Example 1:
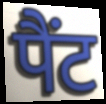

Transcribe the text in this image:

पैंट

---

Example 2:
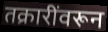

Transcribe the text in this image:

तक्रारींवरून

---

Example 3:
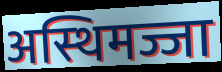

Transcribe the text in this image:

अस्थिमज्जा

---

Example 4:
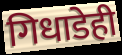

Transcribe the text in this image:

गिधाडेही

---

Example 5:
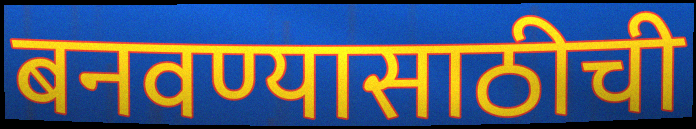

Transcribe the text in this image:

बनवण्यासाठीची